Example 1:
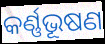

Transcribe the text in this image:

କର୍ଣ୍ଣଭୂଷଣ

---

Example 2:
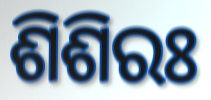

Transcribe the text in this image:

ଶିଶିରଃ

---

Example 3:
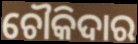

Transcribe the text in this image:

ଚୌକିଦାର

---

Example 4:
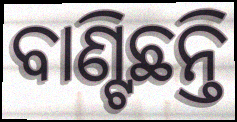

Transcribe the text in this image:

ବାଣ୍ଟିଛନ୍ତି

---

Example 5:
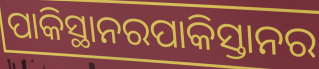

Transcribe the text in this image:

ପାକିସ୍ଥାନରପାକିସ୍ତାନର